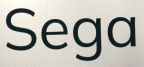
Sega